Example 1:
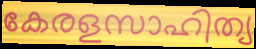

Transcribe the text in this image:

കേരളസാഹിത്യ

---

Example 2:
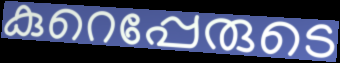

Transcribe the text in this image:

കുറെപ്പേരുടെ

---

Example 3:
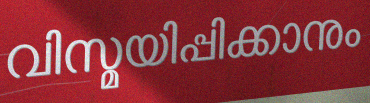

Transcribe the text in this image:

വിസ്മയിപ്പിക്കാനും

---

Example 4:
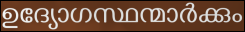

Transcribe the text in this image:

ഉദ്യോഗസ്ഥന്മാർക്കും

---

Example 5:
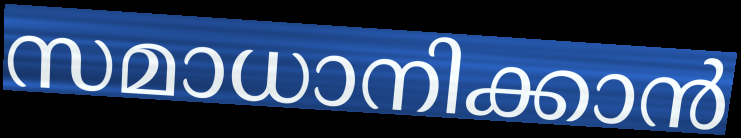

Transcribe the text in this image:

സമാധാനിക്കാൻ